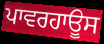
ਪਾਵਰਹਾਊਸ